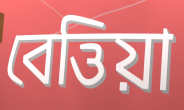
বেত্তিয়া